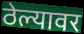
ठेल्यावर